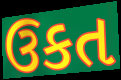
ઉકત